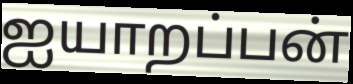
ஐயாறப்பன்